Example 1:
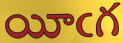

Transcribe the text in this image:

యీఁగ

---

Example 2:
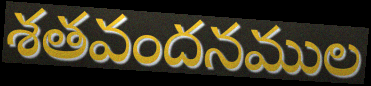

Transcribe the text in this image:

శతవందనముల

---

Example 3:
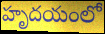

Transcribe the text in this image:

హృదయంలో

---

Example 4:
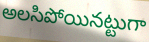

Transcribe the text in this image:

అలసిపోయినట్టుగా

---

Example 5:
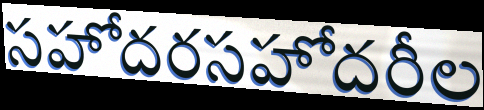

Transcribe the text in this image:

సహోదరసహోదరీల